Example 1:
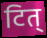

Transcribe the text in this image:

टित्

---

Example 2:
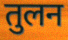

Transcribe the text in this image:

तुलन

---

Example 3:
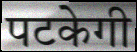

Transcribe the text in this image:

पटकेगी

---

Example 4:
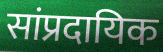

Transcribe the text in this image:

सांप्रदायिक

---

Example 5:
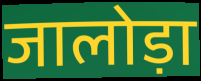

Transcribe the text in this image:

जालोड़ा